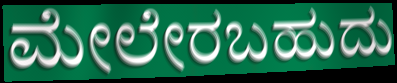
ಮೇಲೇರಬಹುದು